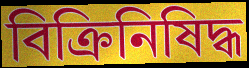
বিক্রিনিষিদ্ধ